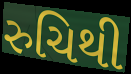
રુચિથી